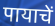
पायाचें